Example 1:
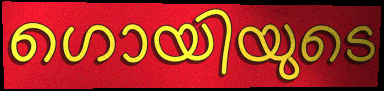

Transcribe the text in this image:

ഗൊയിയുടെ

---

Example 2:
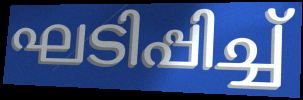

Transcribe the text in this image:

ഘടിപ്പിച്ച്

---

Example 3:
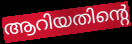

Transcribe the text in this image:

ആറിയതിന്റെ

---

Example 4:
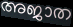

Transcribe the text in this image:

അജാത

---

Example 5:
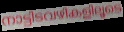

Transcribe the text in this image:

നാട്ടിടവഴികളിലൂടെ